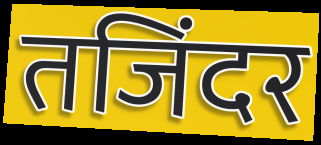
तजिंदर